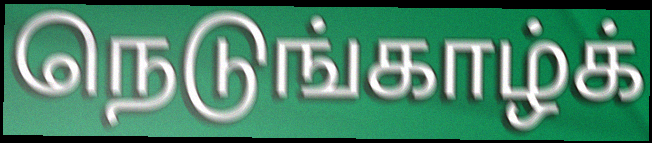
நெடுங்காழ்க்